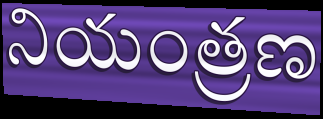
నియంత్రణ